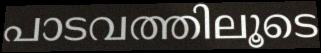
പാടവത്തിലൂടെ